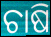
ଚାଷି